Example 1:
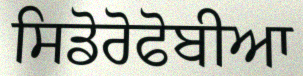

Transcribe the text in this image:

ਸਿਡੋਰੋਫੋਬੀਆ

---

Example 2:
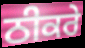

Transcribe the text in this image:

ਠੀਕਰੇ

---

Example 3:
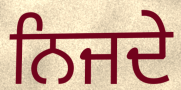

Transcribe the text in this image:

ਨਿਜਦੇ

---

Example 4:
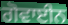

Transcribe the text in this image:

ਗੋਵਾਈਨ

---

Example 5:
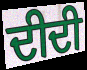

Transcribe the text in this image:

ਦੀਦੀ